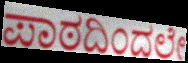
ಪಾಠದಿಂದಲೇ